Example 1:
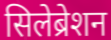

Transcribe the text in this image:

सिलेब्रेशन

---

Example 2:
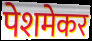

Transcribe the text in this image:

पेशमेकर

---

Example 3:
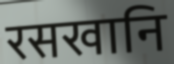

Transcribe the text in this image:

रसखानि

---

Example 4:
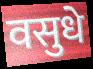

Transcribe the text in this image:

वसुधे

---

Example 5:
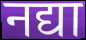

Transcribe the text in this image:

नद्या